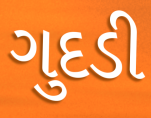
ગુદડી